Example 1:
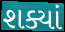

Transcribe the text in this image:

શક્યાં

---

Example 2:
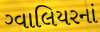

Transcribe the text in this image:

ગ્વાલિયરનાં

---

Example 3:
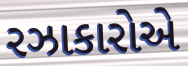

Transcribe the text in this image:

રઝાકારોએ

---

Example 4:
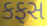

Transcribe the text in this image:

કફસ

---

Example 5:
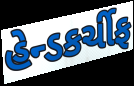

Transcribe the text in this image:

હેન્ડકર્ચીફ